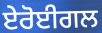
ਏਰੋਈਗਲ